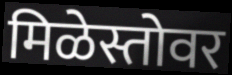
मिळेस्तोवर